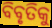
ବିବୃତିକୁ